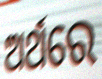
ଅର୍ଥରେ